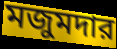
মজুমদার